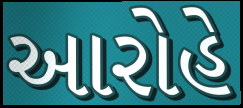
આરોહે